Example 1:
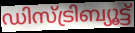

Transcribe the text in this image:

ഡിസ്ട്രിബ്യൂട്ട്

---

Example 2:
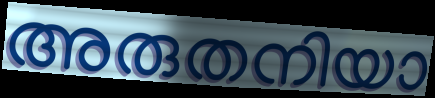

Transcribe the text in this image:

അരുതനിയാ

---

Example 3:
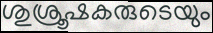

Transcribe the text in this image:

ശുശ്രൂഷകരുടെയും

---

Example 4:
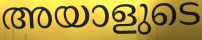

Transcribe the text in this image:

അയാളുടെ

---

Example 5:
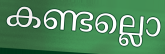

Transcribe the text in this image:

കണ്ടല്ലൊ